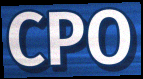
CPO